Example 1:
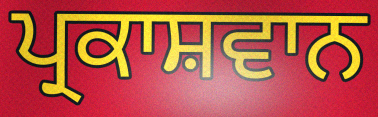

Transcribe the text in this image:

ਪ੍ਰਕਾਸ਼ਵਾਨ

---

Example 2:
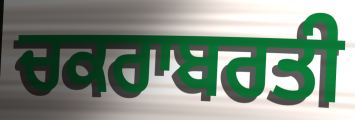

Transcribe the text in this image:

ਚਕਰਾਬਰਤੀ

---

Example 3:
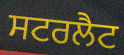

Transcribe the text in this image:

ਸਟਰਲੈਟ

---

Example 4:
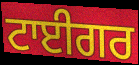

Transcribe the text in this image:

ਟਾਈਗਰ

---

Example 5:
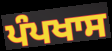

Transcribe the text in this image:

ਪੰਪਖਾਸ